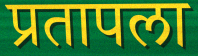
प्रतापला